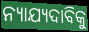
ନ୍ୟାଯ୍ୟଦାବିକୁ